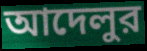
আদেলুর